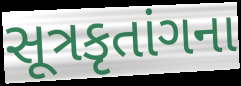
સૂત્રકૃતાંગના